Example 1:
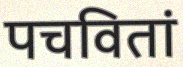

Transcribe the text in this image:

पचवितां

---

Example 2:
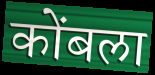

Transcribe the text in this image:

कोंबला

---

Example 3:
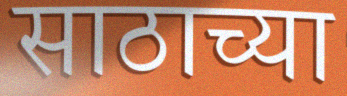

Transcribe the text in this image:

साठाच्या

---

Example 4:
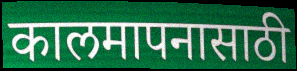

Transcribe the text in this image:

कालमापनासाठी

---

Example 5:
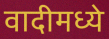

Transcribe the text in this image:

वादीमध्ये